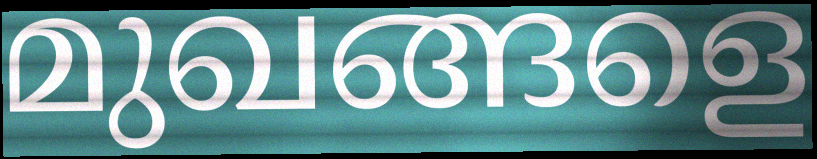
മുഖങ്ങളെ